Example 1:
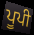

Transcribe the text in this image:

ਪੂਪੀ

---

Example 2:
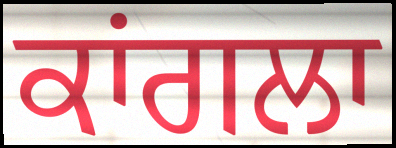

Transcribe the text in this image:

ਕਾਂਗਲਾ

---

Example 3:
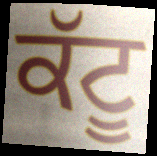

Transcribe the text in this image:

ਕੱਟੂ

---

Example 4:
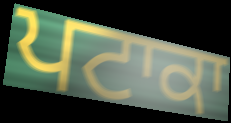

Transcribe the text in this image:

ਪਟਾਕਾ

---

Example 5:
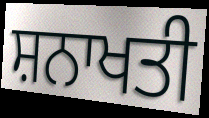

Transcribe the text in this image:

ਸ਼ਨਾਖਤੀ